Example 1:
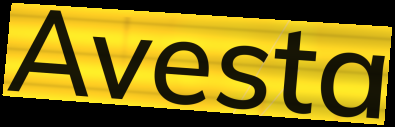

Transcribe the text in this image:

Avesta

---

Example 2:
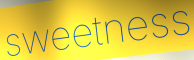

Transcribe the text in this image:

sweetness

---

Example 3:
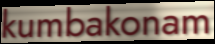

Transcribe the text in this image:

kumbakonam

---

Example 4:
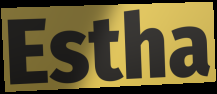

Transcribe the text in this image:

Estha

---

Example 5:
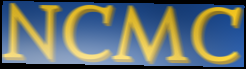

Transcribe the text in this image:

NCMC